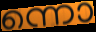
ന്നൊ